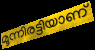
മൂന്നിരട്ടിയാണ്